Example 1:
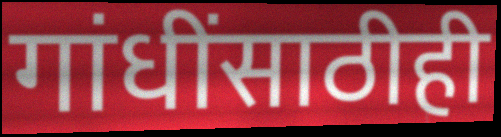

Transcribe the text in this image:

गांधींसाठीही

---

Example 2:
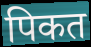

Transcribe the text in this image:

पिकत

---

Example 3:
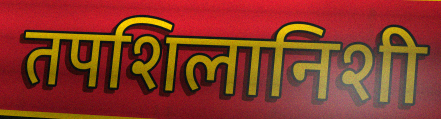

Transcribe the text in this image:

तपशिलानिशी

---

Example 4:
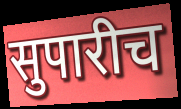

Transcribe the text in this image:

सुपारीच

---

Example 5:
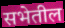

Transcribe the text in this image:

सभेतील